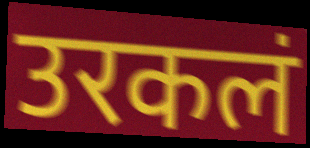
उरकलं